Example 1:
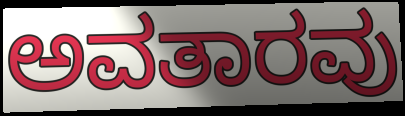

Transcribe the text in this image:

ಅವತಾರವು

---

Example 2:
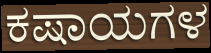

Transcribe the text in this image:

ಕಷಾಯಗಳ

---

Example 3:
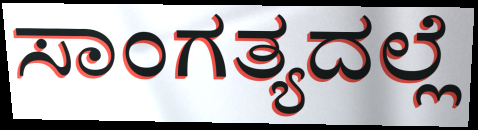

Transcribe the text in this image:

ಸಾಂಗತ್ಯದಲ್ಲೆ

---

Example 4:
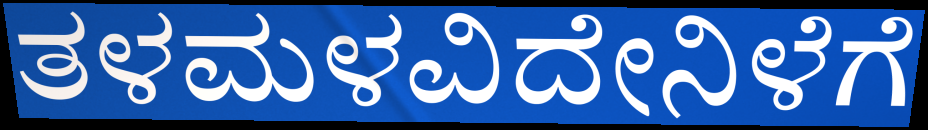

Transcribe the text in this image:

ತಳಮಳವಿದೇನಿಳೆಗೆ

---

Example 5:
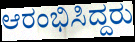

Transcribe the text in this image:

ಆರಂಭಿಸಿದ್ದರು